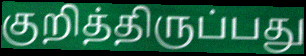
குறித்திருப்பது